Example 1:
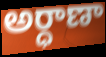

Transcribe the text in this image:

అర్ధాణా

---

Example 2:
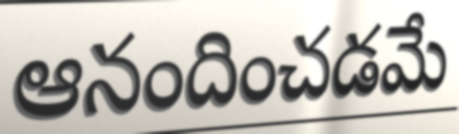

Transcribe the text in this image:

ఆనందించడమే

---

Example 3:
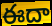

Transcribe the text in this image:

ఈదా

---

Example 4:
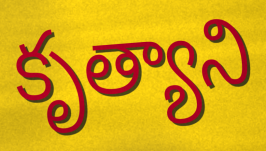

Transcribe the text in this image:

కృత్యాని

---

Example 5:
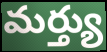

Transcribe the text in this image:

మర్త్యు